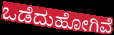
ಒಡೆದುಹೋಗಿವೆ